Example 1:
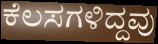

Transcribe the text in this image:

ಕೆಲಸಗಳಿದ್ದವು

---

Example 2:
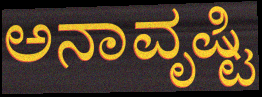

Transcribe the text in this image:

ಅನಾವೃಷ್ಟಿ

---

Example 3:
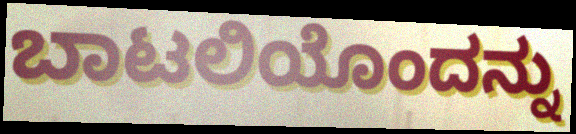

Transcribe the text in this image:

ಬಾಟಲಿಯೊಂದನ್ನು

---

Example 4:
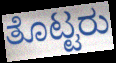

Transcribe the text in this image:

ತೊಟ್ಟರು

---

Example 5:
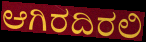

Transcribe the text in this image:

ಆಗಿರದಿರಲಿ